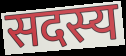
सदस्‍य